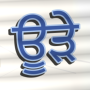
ਊੜੇ